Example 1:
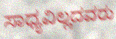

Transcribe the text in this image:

ಸಾಧ್ಯವಿಲ್ಲದವರು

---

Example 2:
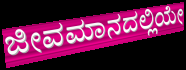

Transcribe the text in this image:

ಜೀವಮಾನದಲ್ಲಿಯೇ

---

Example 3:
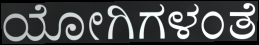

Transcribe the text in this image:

ಯೋಗಿಗಳಂತೆ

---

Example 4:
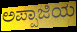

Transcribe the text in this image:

ಅಪ್ಪಾಜಿಯ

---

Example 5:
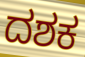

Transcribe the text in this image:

ದಶಕ